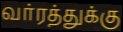
வர்ரத்துக்கு